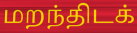
மறந்திடக்